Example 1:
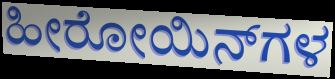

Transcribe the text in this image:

ಹೀರೋಯಿನ್‌ಗಳ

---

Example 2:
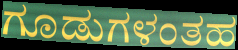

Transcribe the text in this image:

ಗೂಡುಗಳಂತಹ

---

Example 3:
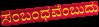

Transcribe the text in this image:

ಸಂಬಂಧವೆಂಬುದು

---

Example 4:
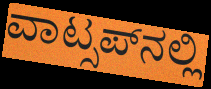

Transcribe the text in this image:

ವಾಟ್ಸಪ್‍ನಲ್ಲಿ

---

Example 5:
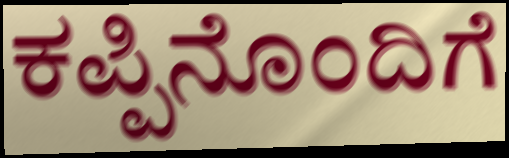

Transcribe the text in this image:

ಕಪ್ಪಿನೊಂದಿಗೆ